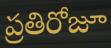
ప్రతిరోజూ